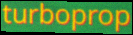
turboprop